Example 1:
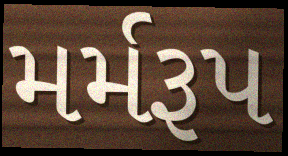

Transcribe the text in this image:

મર્મરૂપ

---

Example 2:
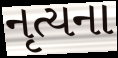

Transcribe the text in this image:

નૃત્યના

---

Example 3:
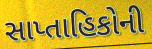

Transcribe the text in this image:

સાપ્તાહિકોની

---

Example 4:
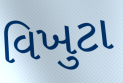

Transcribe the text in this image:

વિખુટા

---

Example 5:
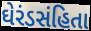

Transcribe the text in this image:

ઘેરંડસંહિતા